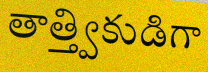
తాత్త్వికుడిగా